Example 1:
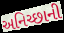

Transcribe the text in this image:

અનિચ્છાની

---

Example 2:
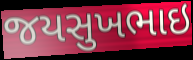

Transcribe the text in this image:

જયસુખભાઇ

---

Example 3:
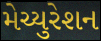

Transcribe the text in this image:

મેચ્યુરેશન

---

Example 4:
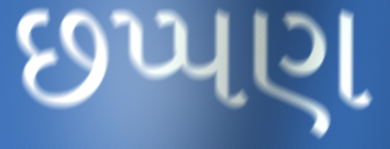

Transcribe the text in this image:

છપ્પણ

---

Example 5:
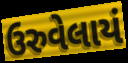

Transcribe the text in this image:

ઉરુવેલાયં